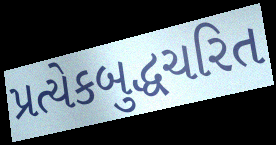
પ્રત્યેકબુદ્ધચરિત